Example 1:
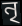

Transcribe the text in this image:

নৃ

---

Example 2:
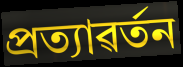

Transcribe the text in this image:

প্ৰত্যাৱৰ্তন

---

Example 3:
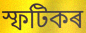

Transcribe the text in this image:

স্ফটিকৰ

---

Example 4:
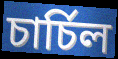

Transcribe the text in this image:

চাৰ্চিল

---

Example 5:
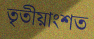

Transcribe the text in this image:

তৃতীয়াংশত